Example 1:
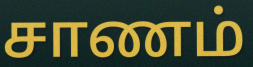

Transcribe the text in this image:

சாணம்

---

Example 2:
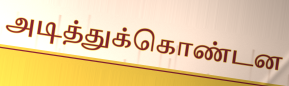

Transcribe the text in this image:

அடித்துக்கொண்டன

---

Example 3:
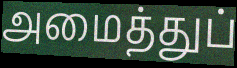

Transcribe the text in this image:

அமைத்துப்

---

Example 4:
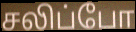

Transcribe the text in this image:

சலிப்போ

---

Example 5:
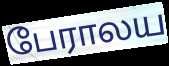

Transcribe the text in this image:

பேராலய